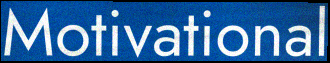
Motivational